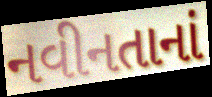
નવીનતાનાં